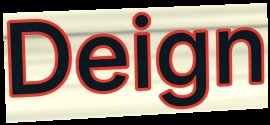
Deign